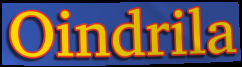
Oindrila